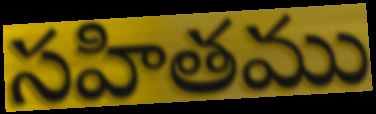
సహితము